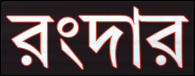
রংদার